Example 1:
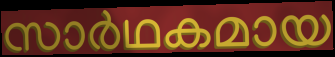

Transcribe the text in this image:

സാർഥകമായ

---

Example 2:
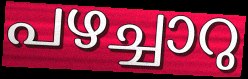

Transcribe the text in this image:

പഴച്ചാറു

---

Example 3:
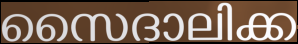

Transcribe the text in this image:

സൈദാലിക്ക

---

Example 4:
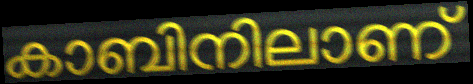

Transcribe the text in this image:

കാബിനിലാണ്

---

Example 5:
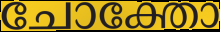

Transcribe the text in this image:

ചോക്തോ